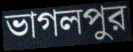
ভাগলপুর